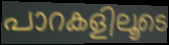
പാറകളിലൂടെ